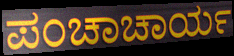
ಪಂಚಾಚಾರ್ಯ